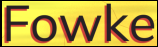
Fowke